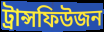
ট্ৰান্সফিউজন